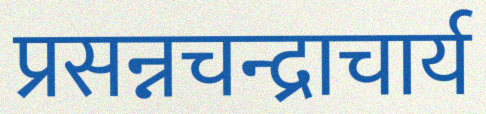
प्रसन्नचन्द्राचार्य